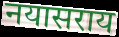
नयासराय